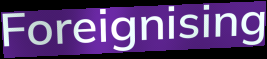
Foreignising